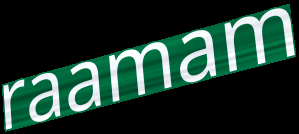
raamam